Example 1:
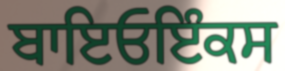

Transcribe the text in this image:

ਬਾਇਓਇੰਕਸ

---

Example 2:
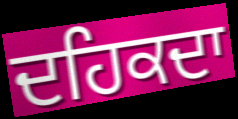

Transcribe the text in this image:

ਦਹਿਕਦਾ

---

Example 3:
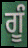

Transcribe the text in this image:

ਗੂੰ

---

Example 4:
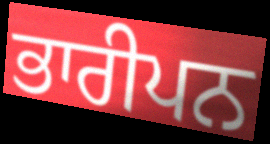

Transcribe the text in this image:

ਭਾਰੀਪਨ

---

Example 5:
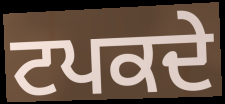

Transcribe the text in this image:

ਟਪਕਦੇ